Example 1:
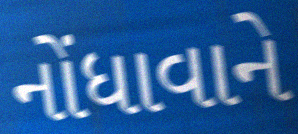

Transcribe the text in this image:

નોંધાવાને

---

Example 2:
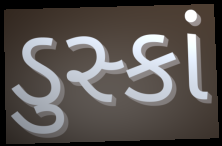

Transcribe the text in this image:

ડુસ્કાં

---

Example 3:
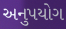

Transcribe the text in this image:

અનુપયોગ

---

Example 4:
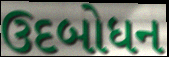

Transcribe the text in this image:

ઉદબોધન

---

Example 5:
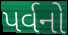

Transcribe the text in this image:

પર્વનો